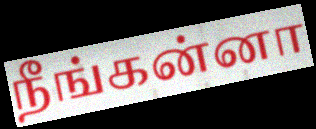
நீங்கன்னா